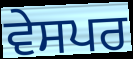
ਵੇਸਪਰ